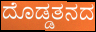
ದೊಡ್ಡತನದ